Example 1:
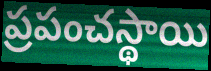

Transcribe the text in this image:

ప్రపంచస్థాయి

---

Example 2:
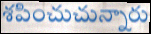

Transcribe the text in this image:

శపించుచున్నారు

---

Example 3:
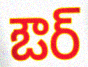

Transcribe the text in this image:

ఔర్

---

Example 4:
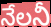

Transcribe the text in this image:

నేలనీ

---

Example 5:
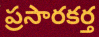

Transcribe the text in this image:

ప్రసారకర్త